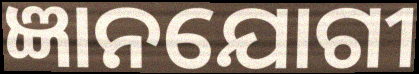
ଜ୍ଞାନଯୋଗୀ